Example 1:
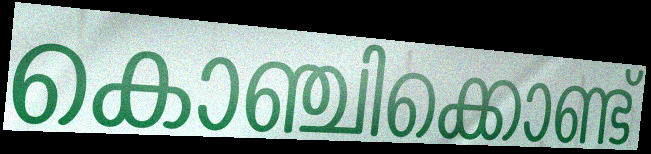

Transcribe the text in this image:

കൊഞ്ചിക്കൊണ്ട്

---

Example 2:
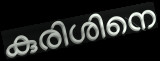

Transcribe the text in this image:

കുരിശിനെ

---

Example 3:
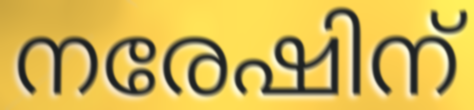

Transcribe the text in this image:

നരേഷിന്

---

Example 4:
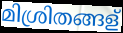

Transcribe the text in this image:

മിശ്രിതങ്ങള്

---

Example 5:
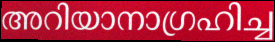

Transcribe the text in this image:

അറിയാനാഗ്രഹിച്ച